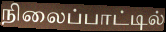
நிலைப்பாட்டில்